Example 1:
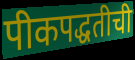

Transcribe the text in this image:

पीकपद्धतीची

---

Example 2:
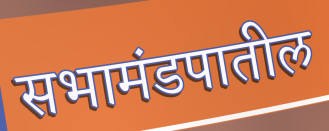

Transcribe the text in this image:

सभामंडपातील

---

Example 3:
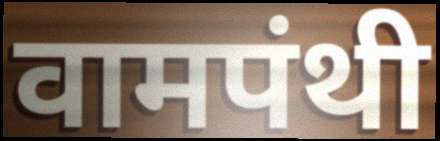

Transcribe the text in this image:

वामपंथी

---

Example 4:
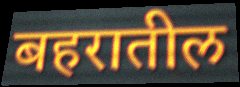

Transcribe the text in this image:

बहरातील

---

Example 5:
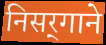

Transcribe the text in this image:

निसर्गाने